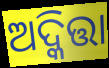
ଅଦ୍କିତ୍ତା